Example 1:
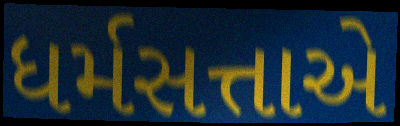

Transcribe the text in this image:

ધર્મસત્તાએ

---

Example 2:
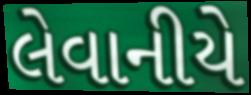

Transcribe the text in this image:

લેવાનીયે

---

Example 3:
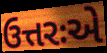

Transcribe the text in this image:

ઉત્તરઃએ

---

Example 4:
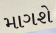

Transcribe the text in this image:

માગશે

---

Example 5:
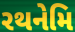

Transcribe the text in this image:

રથનેમિ